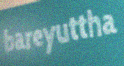
bareyuttha